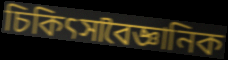
চিকিৎসাবৈজ্ঞানিক